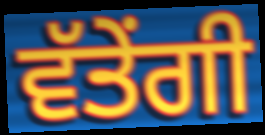
ਵੱਤੇਂਗੀ